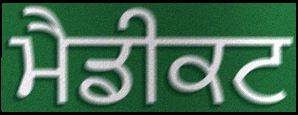
ਮੈਡੀਕਟ